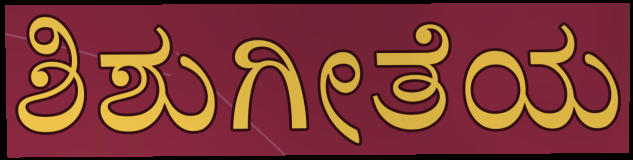
ಶಿಶುಗೀತೆಯ